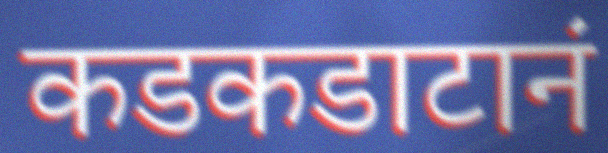
कडकडाटानं